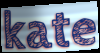
kate